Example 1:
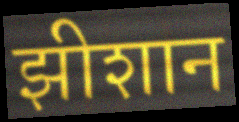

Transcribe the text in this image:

झीशान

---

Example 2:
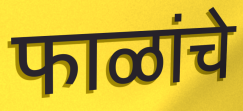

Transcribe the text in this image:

फाळांचे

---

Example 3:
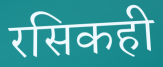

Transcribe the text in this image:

रसिकही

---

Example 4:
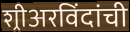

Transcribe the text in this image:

श्रीअरविंदांची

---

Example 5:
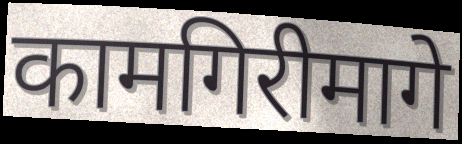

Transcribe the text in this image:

कामगिरीमागे